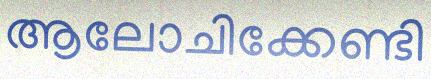
ആലോചിക്കേണ്ടി